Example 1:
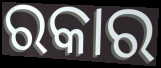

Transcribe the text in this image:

ରକାର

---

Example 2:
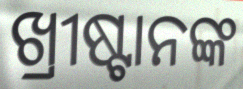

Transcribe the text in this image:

ଖ୍ରୀଷ୍ଟାନଙ୍କ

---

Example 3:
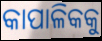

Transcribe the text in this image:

କାପାଳିକକୁ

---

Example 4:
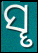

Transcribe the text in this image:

ସୄ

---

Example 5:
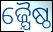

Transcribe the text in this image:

ଜ୍ଯୈଷ୍ଠ